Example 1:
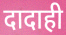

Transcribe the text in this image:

दादाही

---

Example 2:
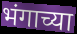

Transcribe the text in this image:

भंगाच्या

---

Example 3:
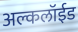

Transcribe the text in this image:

अल्कलॉईड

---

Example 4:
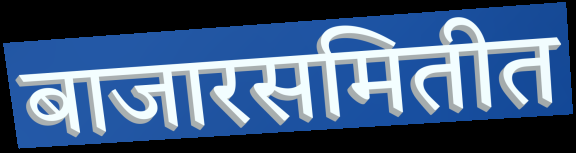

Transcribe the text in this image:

बाजारसमितीत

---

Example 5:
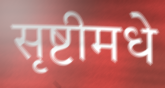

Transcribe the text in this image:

सृष्टीमधे